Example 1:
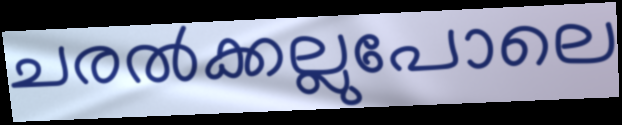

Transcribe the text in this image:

ചരൽക്കല്ലുപോലെ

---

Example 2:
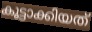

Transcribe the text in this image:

കൂട്ടാക്കിയത്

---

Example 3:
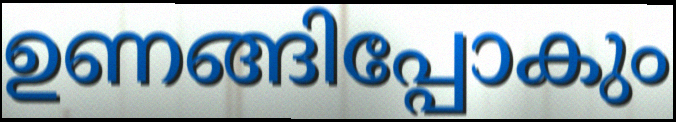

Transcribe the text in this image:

ഉണങ്ങിപ്പോകും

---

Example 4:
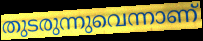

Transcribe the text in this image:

തുടരുന്നുവെന്നാണ്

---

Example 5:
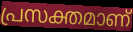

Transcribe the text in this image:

പ്രസക്തമാണ്